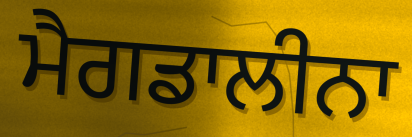
ਮੈਗਡਾਲੀਨਾ